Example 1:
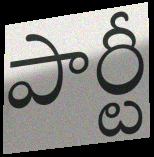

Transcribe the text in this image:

పార్టీ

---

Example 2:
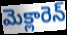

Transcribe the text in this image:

మెక్లారెన్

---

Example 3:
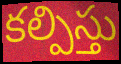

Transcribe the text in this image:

కల్పిస్తు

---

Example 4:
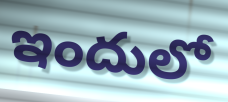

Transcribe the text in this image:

ఇందులో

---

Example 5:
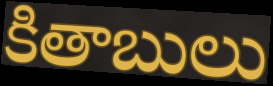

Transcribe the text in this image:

కితాబులు